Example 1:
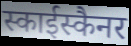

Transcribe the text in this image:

स्काईस्कैनर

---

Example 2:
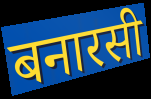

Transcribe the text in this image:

बनारसी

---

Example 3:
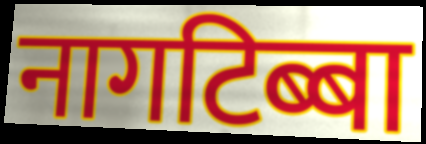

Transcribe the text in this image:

नागटिब्बा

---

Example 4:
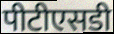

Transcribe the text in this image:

पीटीएसडी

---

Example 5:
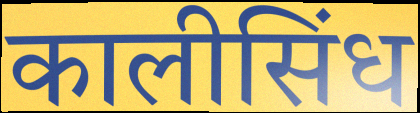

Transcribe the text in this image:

कालीसिंध